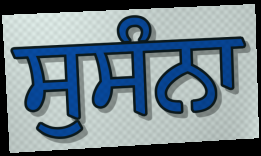
ਸੁਸੰਨਾ